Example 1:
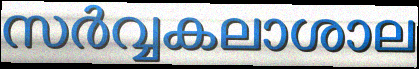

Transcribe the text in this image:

സർവ്വകലാശാല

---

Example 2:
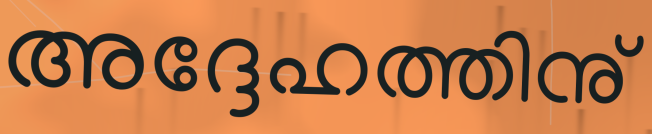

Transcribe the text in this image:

അദ്ദേഹത്തിനു്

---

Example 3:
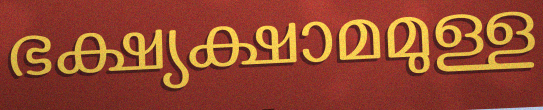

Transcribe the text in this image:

ഭക്ഷ്യക്ഷാമമുള്ള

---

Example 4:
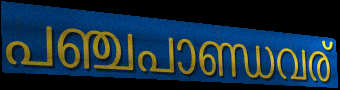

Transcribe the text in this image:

പഞ്ചപാണ്ഡവര്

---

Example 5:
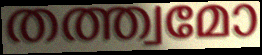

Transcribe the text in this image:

തത്ത്വമോ